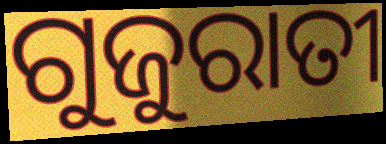
ଗୁଜୁରାତୀ